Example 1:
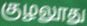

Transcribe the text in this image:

குழலூது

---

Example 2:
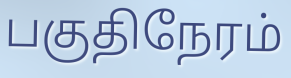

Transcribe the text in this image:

பகுதிநேரம்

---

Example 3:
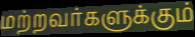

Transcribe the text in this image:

மற்றவர்களுக்கும்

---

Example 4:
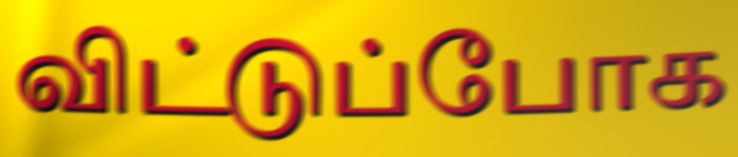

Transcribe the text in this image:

விட்டுப்போக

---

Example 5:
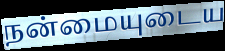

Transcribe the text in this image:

நன்மையுடைய